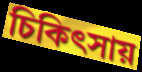
চিকিৎসায়